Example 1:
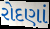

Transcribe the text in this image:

રોદણાં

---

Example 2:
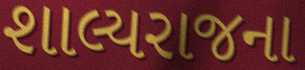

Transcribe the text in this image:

શાલ્યરાજના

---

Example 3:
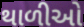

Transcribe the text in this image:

થાળીઓ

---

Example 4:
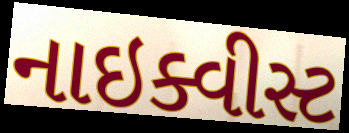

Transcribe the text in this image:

નાઇક્વીસ્ટ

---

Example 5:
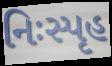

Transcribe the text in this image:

નિઃસ્પૃહ